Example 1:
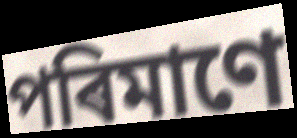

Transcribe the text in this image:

পৰিমাণে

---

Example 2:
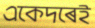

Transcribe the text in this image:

একেদৰেই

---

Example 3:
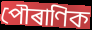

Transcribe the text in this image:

পৌৰাণিক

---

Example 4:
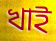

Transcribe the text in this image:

খাই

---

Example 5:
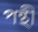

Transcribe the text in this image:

পন্থী